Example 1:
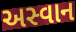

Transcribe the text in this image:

અસ્વાન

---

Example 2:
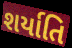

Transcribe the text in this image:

શર્યાતિ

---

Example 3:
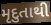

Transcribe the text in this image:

મૃદુતાથી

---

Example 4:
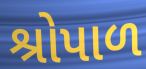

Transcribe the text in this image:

શ્રોપાળ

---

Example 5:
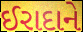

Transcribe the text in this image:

ઈરાદાને